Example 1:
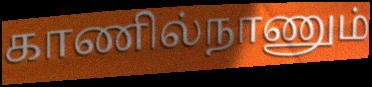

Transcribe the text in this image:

காணில்நாணும்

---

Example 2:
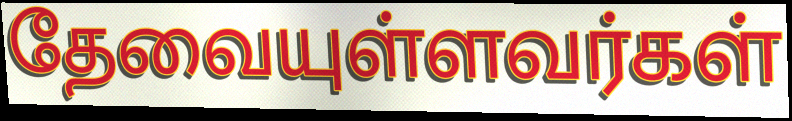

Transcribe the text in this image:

தேவையுள்ளவர்கள்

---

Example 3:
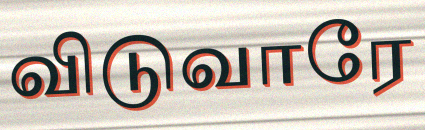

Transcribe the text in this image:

விடுவாரே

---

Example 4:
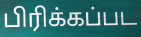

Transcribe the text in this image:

பிரிக்கப்பட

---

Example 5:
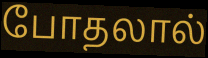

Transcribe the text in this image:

போதலால்